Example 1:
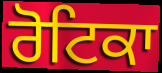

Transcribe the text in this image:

ਰੋਟਿਕਾ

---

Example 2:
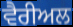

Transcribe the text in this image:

ਵੈਰੀਅਲ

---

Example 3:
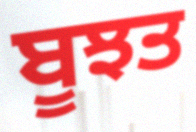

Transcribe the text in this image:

ਬੂਝਤ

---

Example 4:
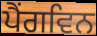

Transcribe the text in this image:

ਪੈਂਗਵਿਨ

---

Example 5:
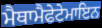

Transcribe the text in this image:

ਮੈਥਾਮੈਫੇਟੇਮਾਇਨ